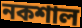
নকশাল